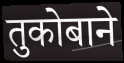
तुकोबाने